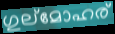
ഗുല്മോഹര്